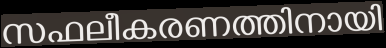
സഫലീകരണത്തിനായി